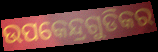
ଉପକେନ୍ଦ୍ରଗୁଡିକର